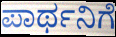
ಪಾರ್ಥನಿಗೆ